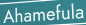
Ahamefula